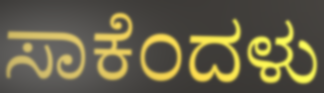
ಸಾಕೆಂದಳು